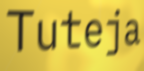
Tuteja